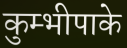
कुम्भीपाके